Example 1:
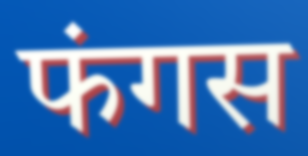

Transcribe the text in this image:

फंगस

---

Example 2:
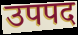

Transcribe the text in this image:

उपपद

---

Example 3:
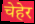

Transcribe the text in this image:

चेहेर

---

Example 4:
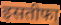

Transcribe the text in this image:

इसतीफा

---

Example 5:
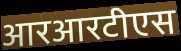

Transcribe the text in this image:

आरआरटीएस